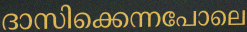
ദാസിക്കെന്നപോലെ